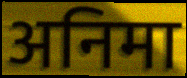
अनिमा